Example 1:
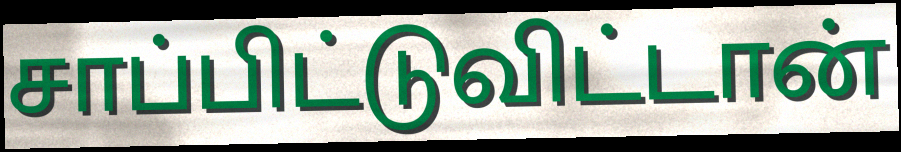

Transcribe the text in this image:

சாப்பிட்டுவிட்டான்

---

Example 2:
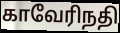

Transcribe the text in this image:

காவேரிநதி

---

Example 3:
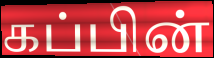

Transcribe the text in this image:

கப்பின்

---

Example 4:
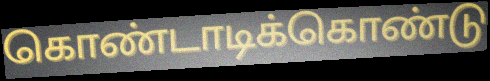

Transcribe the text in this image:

கொண்டாடிக்கொண்டு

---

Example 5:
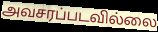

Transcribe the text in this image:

அவசரப்படவில்லை